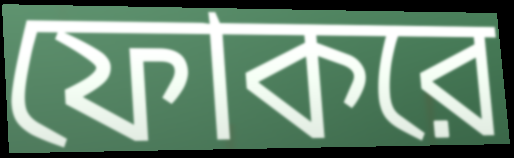
ফোকরে